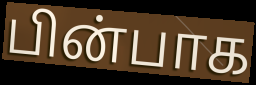
பின்பாக